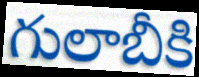
గులాబీకి